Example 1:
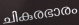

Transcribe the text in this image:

ചികുരഭാരം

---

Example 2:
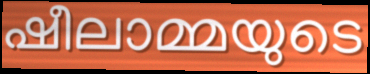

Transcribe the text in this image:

ഷീലാമ്മയുടെ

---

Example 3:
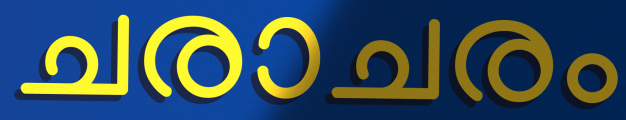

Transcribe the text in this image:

ചരാചരം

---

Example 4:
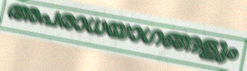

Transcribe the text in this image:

അപരാധയാഗങ്ങളും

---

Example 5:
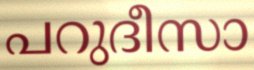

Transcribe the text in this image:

പറുദീസാ